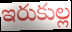
ఇరుకుల్ల